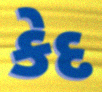
કેદ